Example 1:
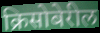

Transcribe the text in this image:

क्रिसोबेरील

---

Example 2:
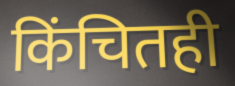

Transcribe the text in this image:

किंचितही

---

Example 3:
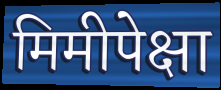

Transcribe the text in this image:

मिमीपेक्षा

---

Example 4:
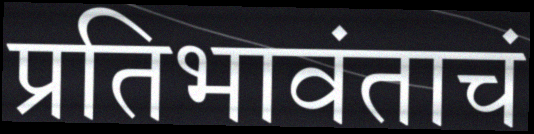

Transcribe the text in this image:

प्रतिभावंताचं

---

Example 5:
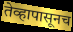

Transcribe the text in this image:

तेव्हापासूनच